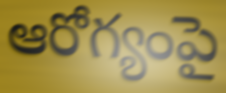
ఆరోగ్యంపై